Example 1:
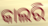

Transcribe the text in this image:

କାଲରି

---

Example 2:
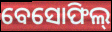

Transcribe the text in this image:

ବେସୋଫିଲ୍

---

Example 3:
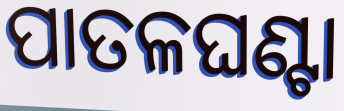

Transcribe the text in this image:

ପାତଳଘଣ୍ଟା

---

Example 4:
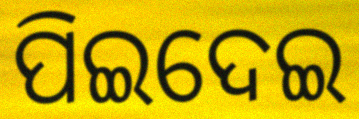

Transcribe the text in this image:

ପିଇଦେଇ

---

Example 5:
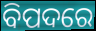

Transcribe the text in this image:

ବିପଦରେ